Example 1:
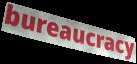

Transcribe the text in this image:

bureaucracy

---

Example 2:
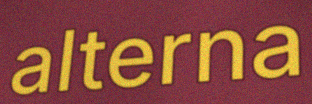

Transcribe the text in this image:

alterna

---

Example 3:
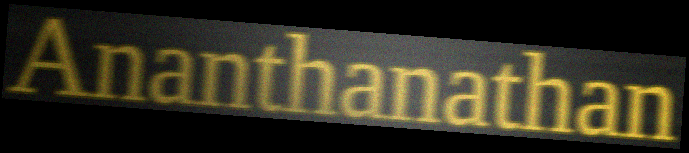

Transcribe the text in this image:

Ananthanathan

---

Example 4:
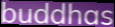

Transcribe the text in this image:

buddhas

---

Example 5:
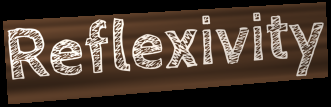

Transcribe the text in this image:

Reflexivity